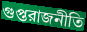
গুপ্তরাজনীতি